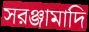
সরঞ্জামাদি